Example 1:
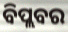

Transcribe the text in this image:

ବିପ୍ଲବର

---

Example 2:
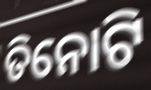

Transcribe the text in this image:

ତିନୋଟି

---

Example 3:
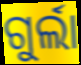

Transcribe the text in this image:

ଗୁର୍ଲା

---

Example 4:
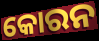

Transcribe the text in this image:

କୋରନ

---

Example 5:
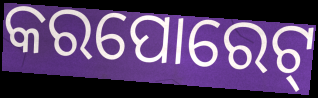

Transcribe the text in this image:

କରପୋରେଟ୍